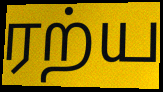
ரற்ய